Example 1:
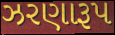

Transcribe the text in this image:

ઝરણારૂપ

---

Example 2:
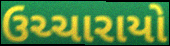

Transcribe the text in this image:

ઉચ્ચારાયો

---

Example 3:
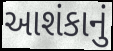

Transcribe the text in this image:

આશંકાનું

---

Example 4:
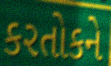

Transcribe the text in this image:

કરતોકને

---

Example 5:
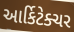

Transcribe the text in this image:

આર્કિટેક્ચર